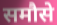
समौसे